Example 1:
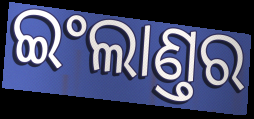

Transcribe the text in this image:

ଇଂଲାଣ୍ତର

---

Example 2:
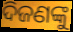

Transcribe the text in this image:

ଦିଜଣଙ୍କୁ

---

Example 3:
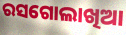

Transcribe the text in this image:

ରସଗୋଲାଖିଆ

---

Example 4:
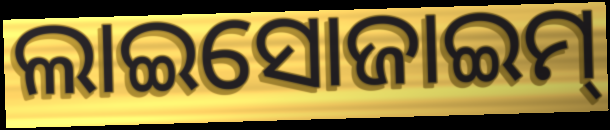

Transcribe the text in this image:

ଲାଇସୋଜାଇମ୍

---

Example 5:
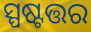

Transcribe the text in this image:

ସ୍ପଷ୍ଟତ୍ତର